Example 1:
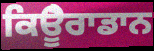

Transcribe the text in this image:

ਕਿਊੈਰਾਡਾਨ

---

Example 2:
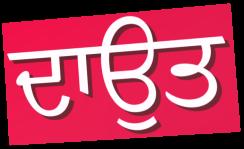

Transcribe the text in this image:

ਦਾਉਤ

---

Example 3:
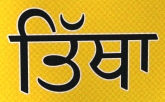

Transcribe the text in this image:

ਤਿੱਥਾ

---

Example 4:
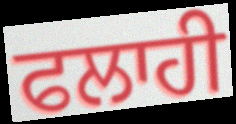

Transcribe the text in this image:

ਫਲਾਹੀ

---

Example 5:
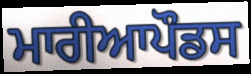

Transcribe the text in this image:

ਮਾਰੀਆਪੌਡਸ